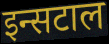
इन्सटाल